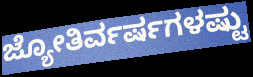
ಜ್ಯೋತಿರ್ವರ್ಷಗಳಷ್ಟು